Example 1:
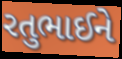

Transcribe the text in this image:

રતુભાઈને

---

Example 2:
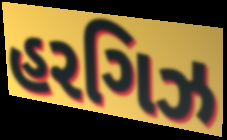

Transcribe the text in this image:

હરગિઝ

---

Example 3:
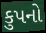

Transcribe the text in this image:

કુપનો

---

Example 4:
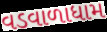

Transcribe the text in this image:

વડવાળાધામ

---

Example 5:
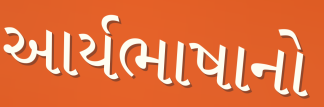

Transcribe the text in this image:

આર્યભાષાનો